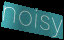
noisy